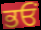
ਭਓਂ